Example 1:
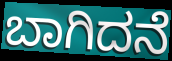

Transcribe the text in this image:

ಬಾಗಿದನೆ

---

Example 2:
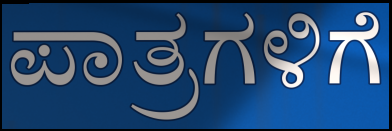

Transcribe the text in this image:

ಪಾತ್ರಗಳಿಗೆ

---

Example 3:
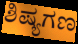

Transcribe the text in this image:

ಶಿಷ್ಯಗಣ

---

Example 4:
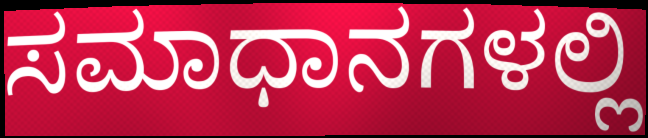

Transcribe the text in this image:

ಸಮಾಧಾನಗಳಲ್ಲಿ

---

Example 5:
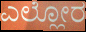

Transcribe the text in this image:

ಎಲ್ಲೋರ